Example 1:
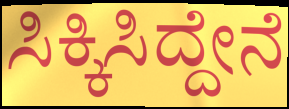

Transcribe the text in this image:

ಸಿಕ್ಕಿಸಿದ್ದೇನೆ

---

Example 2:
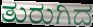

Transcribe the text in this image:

ತುರುಗಿದ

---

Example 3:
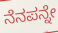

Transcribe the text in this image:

ನೆನಪನ್ನೇ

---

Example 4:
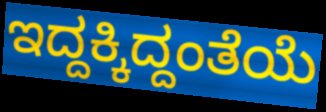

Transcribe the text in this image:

ಇದ್ದಕ್ಕಿದ್ದಂತೆಯೆ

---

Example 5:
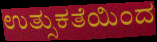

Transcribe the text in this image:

ಉತ್ಸುಕತೆಯಿಂದ